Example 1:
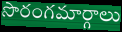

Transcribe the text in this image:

సొరంగమార్గాలు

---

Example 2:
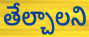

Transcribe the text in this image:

తేల్చాలని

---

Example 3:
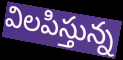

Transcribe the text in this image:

విలపిస్తున్న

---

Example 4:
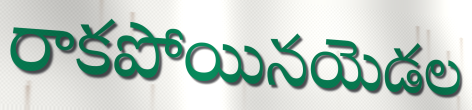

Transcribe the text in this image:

రాకపోయినయెడల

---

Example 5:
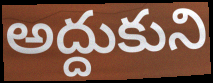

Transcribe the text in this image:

అద్దుకుని